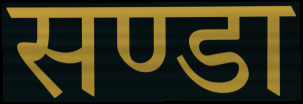
सण्डा